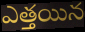
ఎత్తయిన